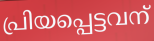
പ്രിയപ്പെട്ടവന്